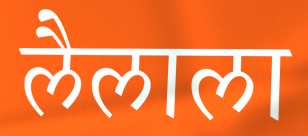
लैलाला